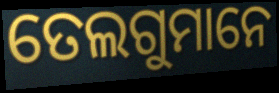
ତେଲଗୁମାନେ